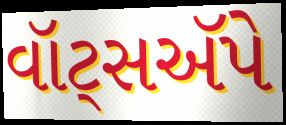
વૉટ્સઍપે